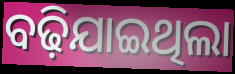
ବଢ଼ିଯାଇଥିଲା